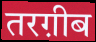
तरग़ीब